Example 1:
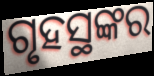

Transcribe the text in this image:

ଗୃହସ୍ଥଙ୍କର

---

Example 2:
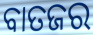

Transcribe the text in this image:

ବାତଜର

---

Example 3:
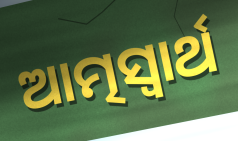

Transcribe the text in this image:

ଆତ୍ମସ୍ଵାର୍ଥ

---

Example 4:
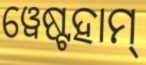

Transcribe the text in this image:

ୱେଷ୍ଟହାମ୍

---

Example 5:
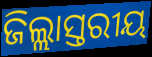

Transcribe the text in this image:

ଜିଲ୍ଲାସ୍ତରୀୟ